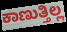
ಕಾಣುತ್ತಿಲ್ಲ